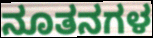
ನೂತನಗಳ